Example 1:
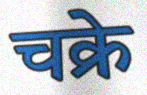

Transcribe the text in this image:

चक्रे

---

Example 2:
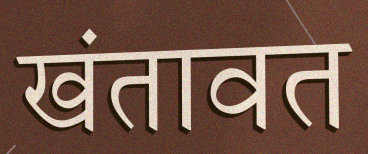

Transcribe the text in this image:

खंतावत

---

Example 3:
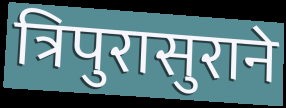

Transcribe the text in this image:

त्रिपुरासुराने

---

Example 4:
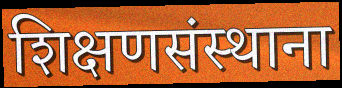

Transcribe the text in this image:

शिक्षणसंस्थाना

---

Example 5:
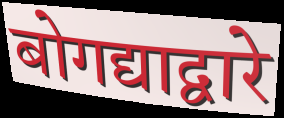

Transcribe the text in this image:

बोगद्याद्वारे